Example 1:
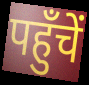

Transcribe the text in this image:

पहुँचें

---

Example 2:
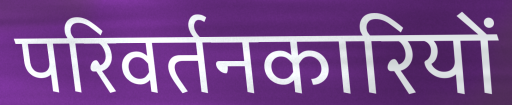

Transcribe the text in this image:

परिवर्तनकारियों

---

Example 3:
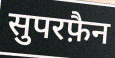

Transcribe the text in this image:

सुपरफ़ैन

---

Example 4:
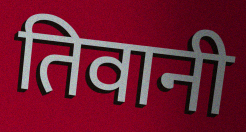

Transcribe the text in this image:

तिवानी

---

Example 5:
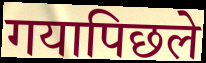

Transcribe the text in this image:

गयापिछले